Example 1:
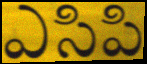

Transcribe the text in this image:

ఎసిపి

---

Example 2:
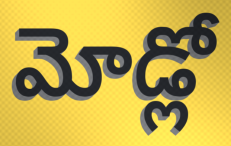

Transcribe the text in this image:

మోడ్లో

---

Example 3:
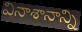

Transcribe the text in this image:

వినాశానాన్ని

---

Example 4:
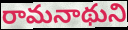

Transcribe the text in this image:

రామనాథుని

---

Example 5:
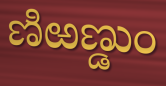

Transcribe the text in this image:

ణిఱణ్డుం